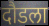
दौडला